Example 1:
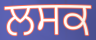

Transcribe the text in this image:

ਲਸਕ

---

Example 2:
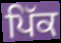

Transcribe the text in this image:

ਪਿੱਕ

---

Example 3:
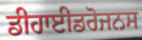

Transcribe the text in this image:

ਡੀਹਾਈਡਰੋਜਨਸ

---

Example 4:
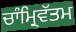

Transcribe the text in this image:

ਚਾੰਮ੍ਰਿਵੱਤਮ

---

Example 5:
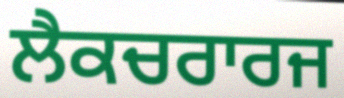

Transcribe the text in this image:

ਲੈਕਚਰਾਰਜ